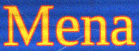
Mena